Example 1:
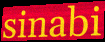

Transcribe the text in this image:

sinabi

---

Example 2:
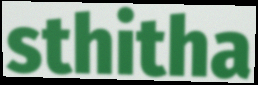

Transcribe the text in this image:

sthitha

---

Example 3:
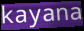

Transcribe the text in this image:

kayana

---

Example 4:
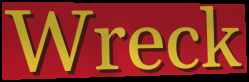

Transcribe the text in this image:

Wreck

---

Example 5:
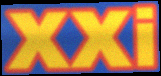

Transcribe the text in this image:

XXi